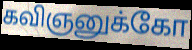
கவிஞனுக்கோ